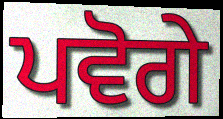
ਪਵੋਗੇ